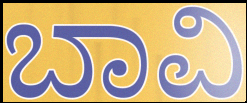
ಬಾವಿ